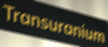
Transuranium